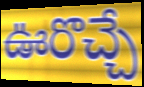
ఊరొచ్చే